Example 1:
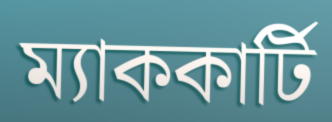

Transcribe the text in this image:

ম্যাককার্টি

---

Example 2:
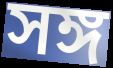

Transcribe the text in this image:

সঙ্গ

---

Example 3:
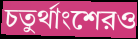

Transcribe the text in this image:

চতুর্থাংশেরও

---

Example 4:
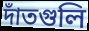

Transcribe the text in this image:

দাঁতগুলি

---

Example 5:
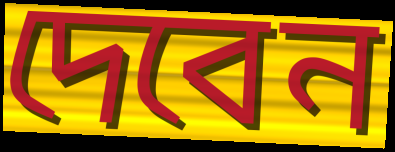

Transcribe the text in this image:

দেবেন